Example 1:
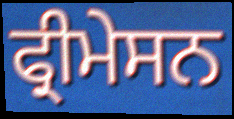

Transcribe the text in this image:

ਫ੍ਰੀਮੇਸਨ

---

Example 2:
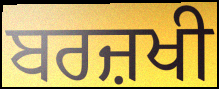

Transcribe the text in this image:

ਬਰਜ਼ਖੀ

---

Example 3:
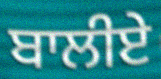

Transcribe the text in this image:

ਬਾਲੀਏ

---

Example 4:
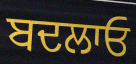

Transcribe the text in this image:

ਬਦਲਾਓ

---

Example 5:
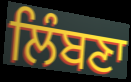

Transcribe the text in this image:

ਲਿੰਬਣਾ